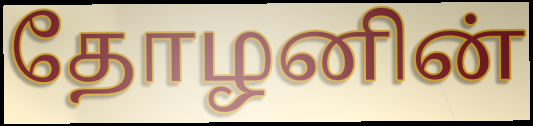
தோழனின்